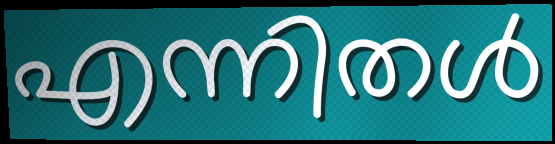
എന്നിതൾ